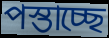
পস্তাচ্ছে